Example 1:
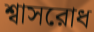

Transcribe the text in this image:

শ্বাসরোধ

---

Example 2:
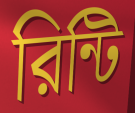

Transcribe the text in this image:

রিন্টি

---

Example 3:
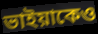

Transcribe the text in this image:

ভাইয়াকেও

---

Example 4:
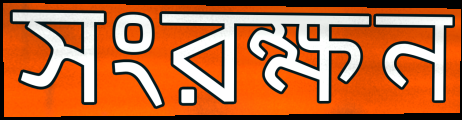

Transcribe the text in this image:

সংরক্ষন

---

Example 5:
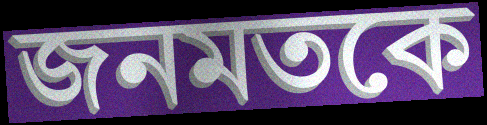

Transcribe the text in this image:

জনমতকে